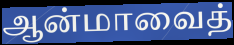
ஆன்மாவைத்